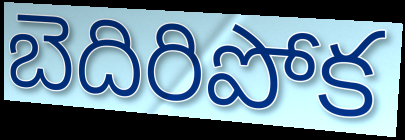
బెదిరిపోక